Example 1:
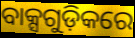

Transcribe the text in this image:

ବାକ୍ସଗୁଡ଼ିକରେ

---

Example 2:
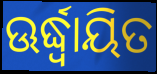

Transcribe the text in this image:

ଊର୍ଦ୍ଧ୍ୱାୟିତ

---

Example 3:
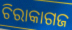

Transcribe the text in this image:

ଚିରାକାଗଜ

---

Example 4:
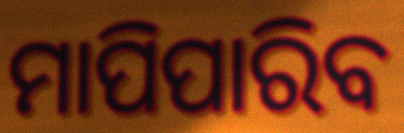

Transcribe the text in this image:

ମାପିପାରିବ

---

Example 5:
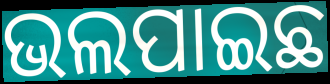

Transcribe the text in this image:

ଭଲପାଇଛ